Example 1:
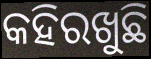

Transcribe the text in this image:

କହିରଖୁଛି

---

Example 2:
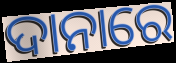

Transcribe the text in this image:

ଦାନାରେ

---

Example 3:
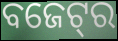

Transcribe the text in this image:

ବଜେଟ୍‌ର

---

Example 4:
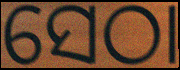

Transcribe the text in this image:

ସେଠା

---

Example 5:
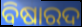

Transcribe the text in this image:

ବିଷାରଦ